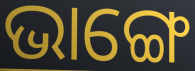
ଭାଙ୍ଗେ